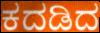
ಕದಡಿದ